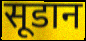
सूडान